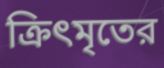
ক্রিৎমৃতের